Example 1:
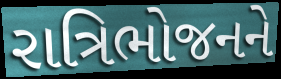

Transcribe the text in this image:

રાત્રિભોજનને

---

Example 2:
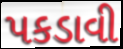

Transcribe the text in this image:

પકડાવી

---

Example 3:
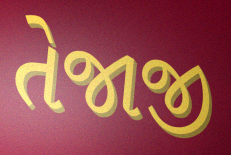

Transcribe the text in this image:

તેજાજી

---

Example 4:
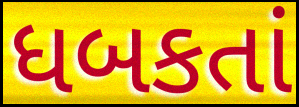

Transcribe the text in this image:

ધબકતાં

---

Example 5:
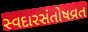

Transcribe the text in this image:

સ્વદારસંતોષવ્રત